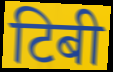
टिबी